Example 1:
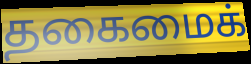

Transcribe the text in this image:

தகைமைக்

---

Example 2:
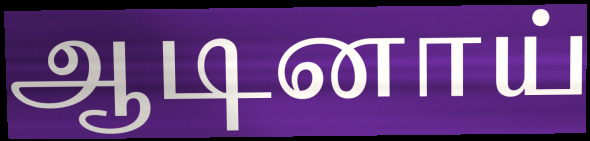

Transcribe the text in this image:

ஆடினாய்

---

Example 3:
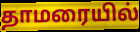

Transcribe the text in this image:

தாமரையில்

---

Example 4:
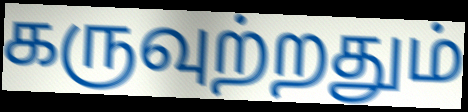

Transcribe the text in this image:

கருவுற்றதும்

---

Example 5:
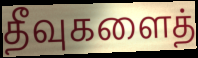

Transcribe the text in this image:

தீவுகளைத்